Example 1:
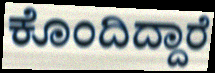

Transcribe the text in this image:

ಕೊಂದಿದ್ದಾರೆ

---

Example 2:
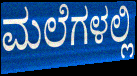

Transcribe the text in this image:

ಮಲೆಗಳಲ್ಲಿ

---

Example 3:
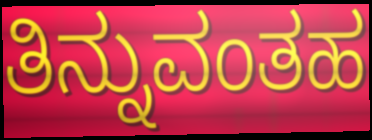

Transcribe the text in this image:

ತಿನ್ನುವಂತಹ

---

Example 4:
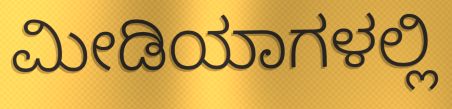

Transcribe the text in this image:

ಮೀಡಿಯಾಗಳಲ್ಲಿ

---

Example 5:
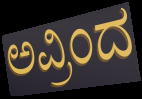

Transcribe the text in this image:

ಅವ್ರಿಂದ